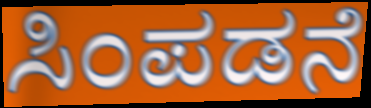
ಸಿಂಪಡನೆ